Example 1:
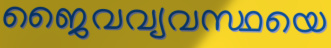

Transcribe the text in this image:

ജൈവവ്യവസ്ഥയെ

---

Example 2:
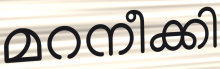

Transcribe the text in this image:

മറനീക്കി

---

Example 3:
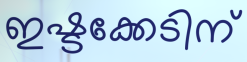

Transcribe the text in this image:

ഇഷ്ടക്കേടിന്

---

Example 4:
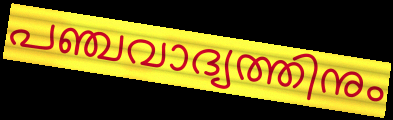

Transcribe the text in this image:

പഞ്ചവാദ്യത്തിനും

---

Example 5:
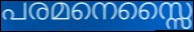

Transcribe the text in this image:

പരമനെസ്സൈ